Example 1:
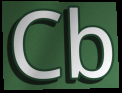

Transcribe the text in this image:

Cb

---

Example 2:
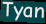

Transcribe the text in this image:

Tyan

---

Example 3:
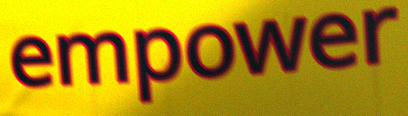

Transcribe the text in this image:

empower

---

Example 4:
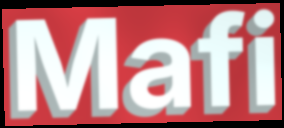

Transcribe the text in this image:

Mafi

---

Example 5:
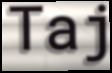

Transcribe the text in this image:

Taj